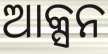
ଆକ୍ସନ